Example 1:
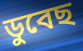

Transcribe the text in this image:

ডুবেছ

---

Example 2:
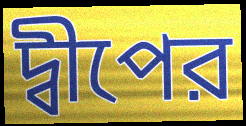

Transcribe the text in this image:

দ্বীপের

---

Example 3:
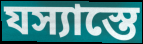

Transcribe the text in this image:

যস্যাস্তে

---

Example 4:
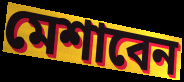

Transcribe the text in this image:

মেশাবেন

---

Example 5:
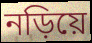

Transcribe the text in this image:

নড়িয়ে